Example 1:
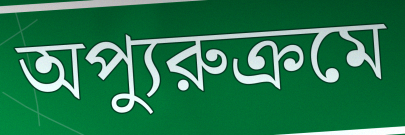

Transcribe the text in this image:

অপ্যুরুক্রমে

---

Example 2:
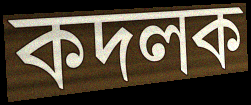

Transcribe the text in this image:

কদলক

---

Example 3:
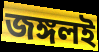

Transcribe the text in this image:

জঙ্গলই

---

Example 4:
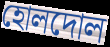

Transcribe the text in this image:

হোলদোল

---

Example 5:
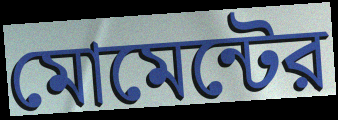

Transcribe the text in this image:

মোমেন্টের